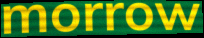
morrow